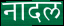
नादल